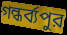
গন্ধর্ব্যপুর